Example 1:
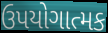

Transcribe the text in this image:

ઉપયોગાત્મક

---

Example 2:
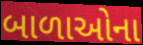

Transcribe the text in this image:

બાળાઓના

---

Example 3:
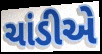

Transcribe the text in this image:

ચાંડીએ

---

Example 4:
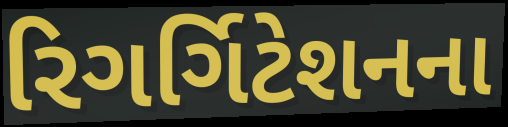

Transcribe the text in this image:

રિગર્ગિટેશનના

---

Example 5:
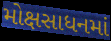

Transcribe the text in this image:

મોક્ષસાધનમાં